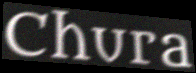
Chura